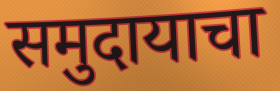
समुदायाचा